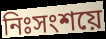
নিঃসংশয়ে